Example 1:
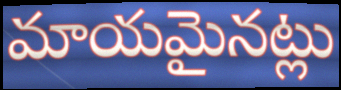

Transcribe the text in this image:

మాయమైనట్లు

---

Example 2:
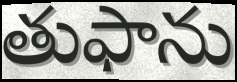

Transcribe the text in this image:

తుఫాను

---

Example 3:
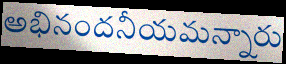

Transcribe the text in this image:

అభినందనీయమన్నారు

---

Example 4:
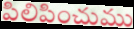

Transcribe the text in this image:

పిలిపించుము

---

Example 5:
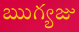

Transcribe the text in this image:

ఋగ్యజు